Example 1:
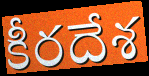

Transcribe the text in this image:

కీరదేశ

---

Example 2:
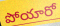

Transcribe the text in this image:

పోయారో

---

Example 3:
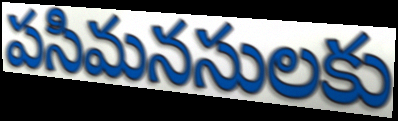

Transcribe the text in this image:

పసిమనసులకు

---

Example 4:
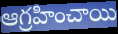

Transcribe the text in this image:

ఆగ్రహించాయి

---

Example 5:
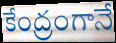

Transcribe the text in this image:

కేంద్రంగానే